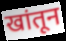
खांतून